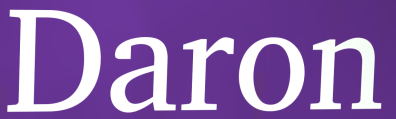
Daron